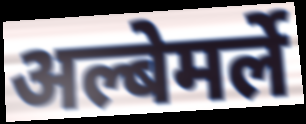
अल्बेमर्ले